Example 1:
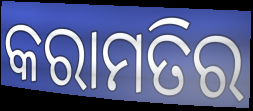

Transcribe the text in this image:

କରାମତିର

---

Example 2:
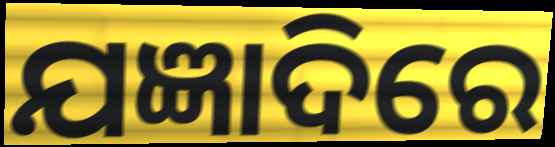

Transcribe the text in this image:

ଯଜ୍ଞାଦିରେ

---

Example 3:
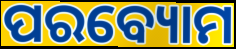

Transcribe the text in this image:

ପରବ୍ୟୋମ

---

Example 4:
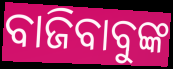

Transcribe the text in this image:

ବାଜିବାବୁଙ୍କ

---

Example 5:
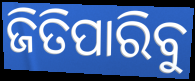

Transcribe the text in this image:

ଜିତିପାରିବୁ